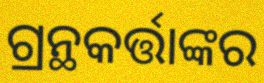
ଗ୍ରନ୍ଥକର୍ତ୍ତାଙ୍କର